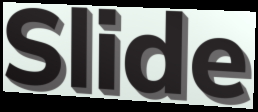
Slide